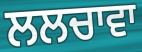
ਲਲਚਾਵਾ